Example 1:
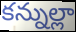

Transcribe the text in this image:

కన్నుల్లా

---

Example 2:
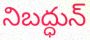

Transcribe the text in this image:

నిబద్ధున్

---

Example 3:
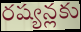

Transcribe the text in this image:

రష్యన్లకు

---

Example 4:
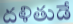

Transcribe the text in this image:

దళితుడే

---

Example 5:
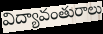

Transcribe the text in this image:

విద్యావంతురాలు